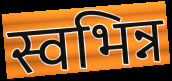
स्वभिन्न